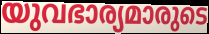
യുവഭാര്യമാരുടെ